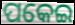
ପକେଇ